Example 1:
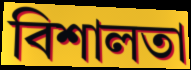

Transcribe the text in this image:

বিশালতা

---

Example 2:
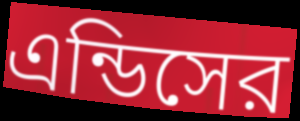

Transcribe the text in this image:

এন্ডিসের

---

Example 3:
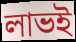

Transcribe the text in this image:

লাভই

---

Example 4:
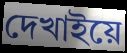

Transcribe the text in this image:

দেখাইয়ে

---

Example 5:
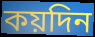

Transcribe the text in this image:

কয়দিন